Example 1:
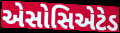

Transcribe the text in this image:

એસોસિએટેડ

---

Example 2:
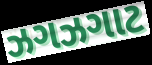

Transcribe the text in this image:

ઝગઝગાટ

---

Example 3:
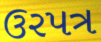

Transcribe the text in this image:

ઉરપત્ર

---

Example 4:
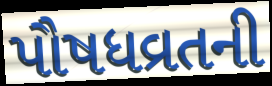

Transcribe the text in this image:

પૌષધવ્રતની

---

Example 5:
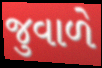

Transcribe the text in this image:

જુવાળે